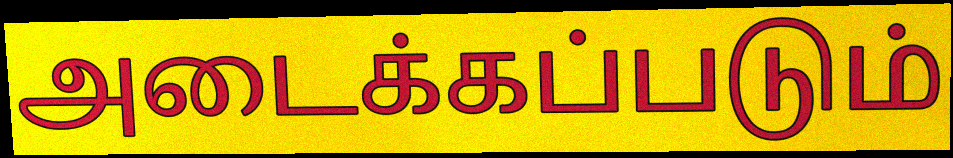
அடைக்கப்படும்